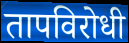
तापविरोधी